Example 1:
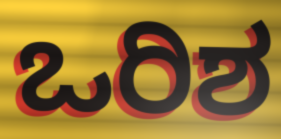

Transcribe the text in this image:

ಒರಿಶ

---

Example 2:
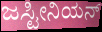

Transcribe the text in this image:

ಜಸ್ಟೀನಿಯನ್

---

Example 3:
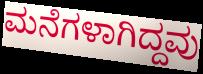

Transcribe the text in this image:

ಮನೆಗಳಾಗಿದ್ದವು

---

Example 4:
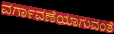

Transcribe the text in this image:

ವರ್ಗಾವಣೆಯಾಗುವಂತೆ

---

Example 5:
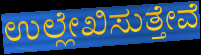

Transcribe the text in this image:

ಉಲ್ಲೇಖಿಸುತ್ತೇವೆ